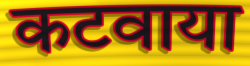
कटवाया